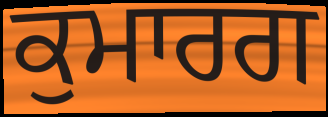
ਕੁਮਾਰਗ